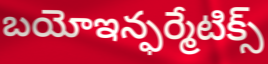
బయోఇన్ఫర్మేటిక్స్